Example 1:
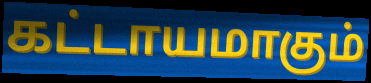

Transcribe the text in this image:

கட்டாயமாகும்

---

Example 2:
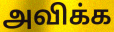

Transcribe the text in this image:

அவிக்க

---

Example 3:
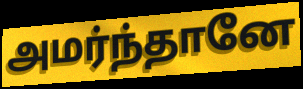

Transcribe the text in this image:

அமர்ந்தானே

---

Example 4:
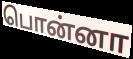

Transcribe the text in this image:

பொன்னா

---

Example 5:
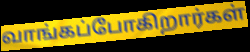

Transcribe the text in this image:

வாங்கப்போகிறார்கள்